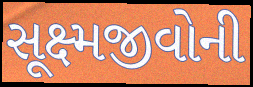
સૂક્ષ્મજીવોની